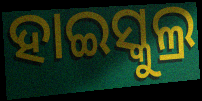
ହାଇସ୍କୁଲ୍ର